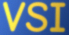
VSI